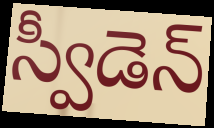
స్వీడెన్